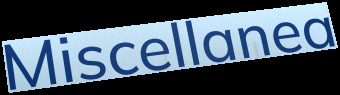
Miscellanea